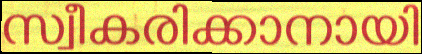
സ്വീകരിക്കാനായി